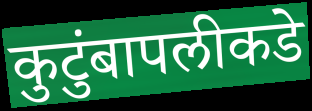
कुटुंबापलीकडे